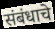
संबंधाचे